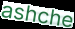
ashche